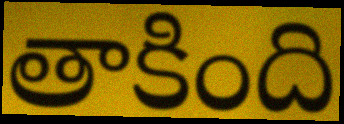
తాకింది